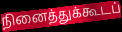
நினைத்துக்கூடப்